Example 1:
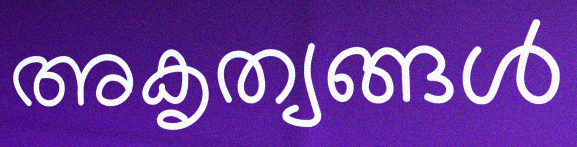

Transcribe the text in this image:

അകൃത്യങ്ങൾ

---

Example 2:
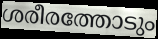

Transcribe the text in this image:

ശരീരത്തോടും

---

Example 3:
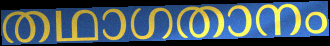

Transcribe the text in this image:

തഥാഗതാനം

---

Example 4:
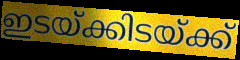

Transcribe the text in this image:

ഇടയ്ക്കിടയ്ക്ക്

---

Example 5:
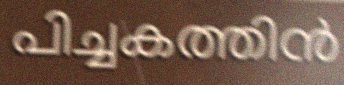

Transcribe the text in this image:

പിച്ചകത്തിൻ